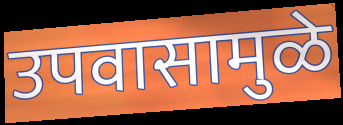
उपवासामुळे